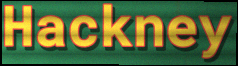
Hackney